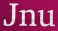
Jnu